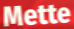
Mette